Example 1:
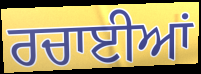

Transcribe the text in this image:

ਰਚਾਈਆਂ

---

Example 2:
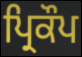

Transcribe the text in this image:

ਪ੍ਰਿਕੌਪ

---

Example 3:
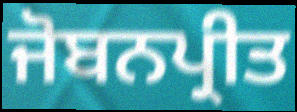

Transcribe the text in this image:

ਜੋਬਨਪ੍ਰੀਤ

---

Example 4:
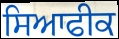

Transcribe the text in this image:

ਸਿਆਫੀਕ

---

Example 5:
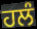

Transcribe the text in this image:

ਹਲੰ